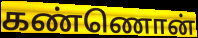
கண்ணொன்